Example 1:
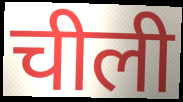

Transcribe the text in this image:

चीली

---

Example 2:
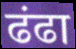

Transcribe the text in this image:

ढंढा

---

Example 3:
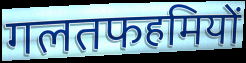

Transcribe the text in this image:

गलतफहमियों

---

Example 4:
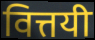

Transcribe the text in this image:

वित्तयी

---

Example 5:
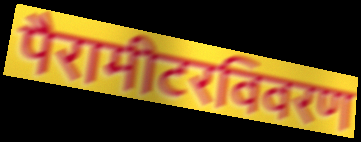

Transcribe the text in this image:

पैरामीटरविवरण